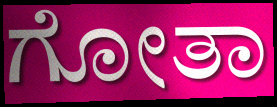
ಗೋತಾ